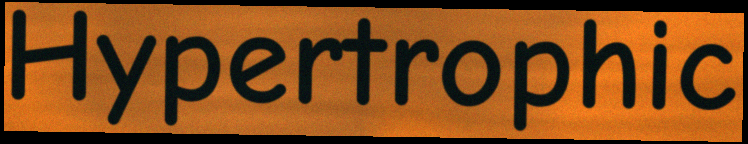
Hypertrophic